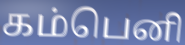
கம்பெனி